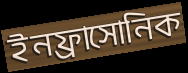
ইনফ্রাসোনিক